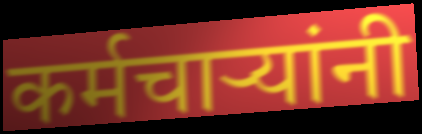
कर्मचाऱ्यांनी